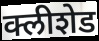
क्लीशेड